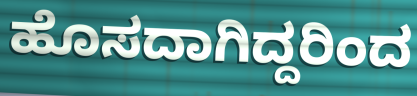
ಹೊಸದಾಗಿದ್ದರಿಂದ